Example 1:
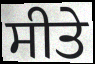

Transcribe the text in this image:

ਸੀਤੇ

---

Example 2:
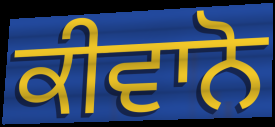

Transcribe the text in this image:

ਕੀਵਾਨੋ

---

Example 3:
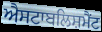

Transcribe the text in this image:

ਐਸਟਾਬਲਿਸ਼ਮੈਂਟ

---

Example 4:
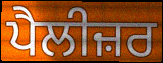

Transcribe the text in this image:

ਪੈਲੀਜ਼ਰ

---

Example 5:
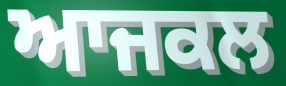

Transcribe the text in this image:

ਆਜਕਲ